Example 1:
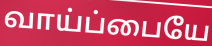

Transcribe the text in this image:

வாய்ப்பையே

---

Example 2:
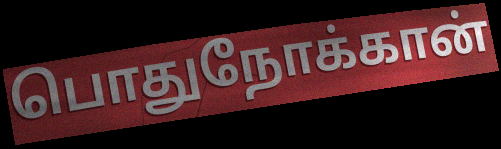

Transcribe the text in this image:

பொதுநோக்கான்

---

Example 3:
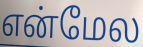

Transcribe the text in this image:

என்மேல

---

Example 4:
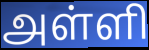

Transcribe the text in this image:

அள்ளி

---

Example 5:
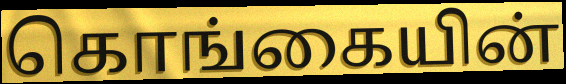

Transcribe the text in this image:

கொங்கையின்